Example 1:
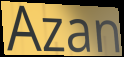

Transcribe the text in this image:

Azan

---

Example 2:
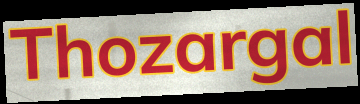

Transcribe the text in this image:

Thozargal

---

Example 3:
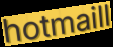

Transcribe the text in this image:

hotmaill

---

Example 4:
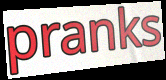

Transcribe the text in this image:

pranks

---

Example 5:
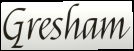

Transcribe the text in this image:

Gresham